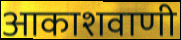
आकाशवाणी